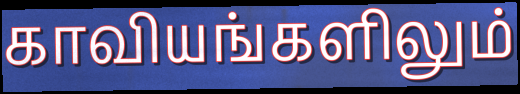
காவியங்களிலும்